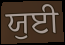
ਯੁਈ